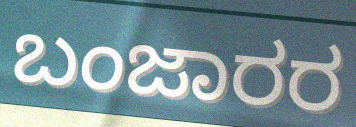
ಬಂಜಾರರ